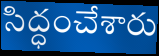
సిద్ధంచేశారు